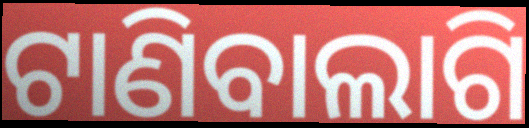
ଟାଣିବାଲାଗି